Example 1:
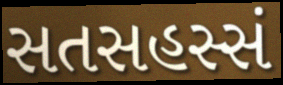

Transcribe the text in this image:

સતસહસ્સં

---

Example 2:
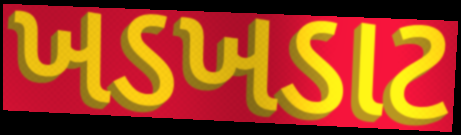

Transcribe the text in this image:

ખડખડાટ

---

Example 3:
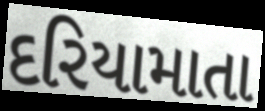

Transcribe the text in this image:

દરિયામાતા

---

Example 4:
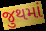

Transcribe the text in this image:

જુથમાં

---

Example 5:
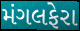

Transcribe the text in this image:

મંગલફેરા